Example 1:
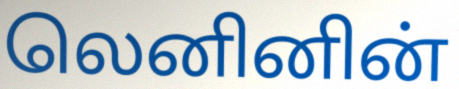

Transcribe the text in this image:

லெனினின்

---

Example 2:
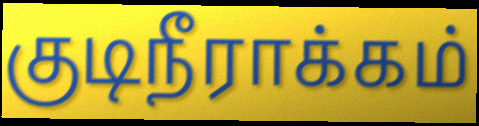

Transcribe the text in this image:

குடிநீராக்கம்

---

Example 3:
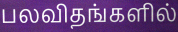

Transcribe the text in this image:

பலவிதங்களில்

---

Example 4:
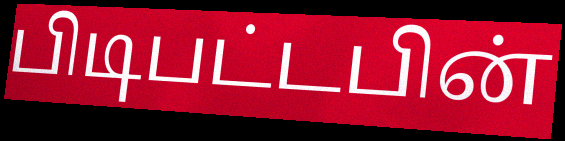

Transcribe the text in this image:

பிடிபட்டபின்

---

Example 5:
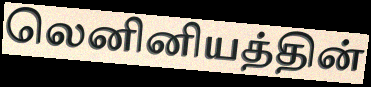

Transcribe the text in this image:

லெனினியத்தின்